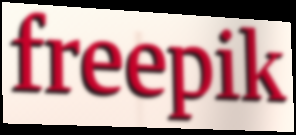
freepik